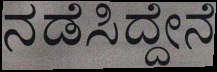
ನಡೆಸಿದ್ದೇನೆ